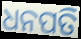
ଧନପତି